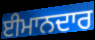
ਈਮਾਨਦਾਰ